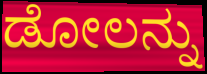
ಡೋಲನ್ನು